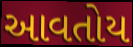
આવતોય